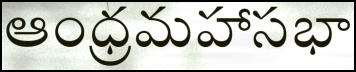
ఆంధ్రమహాసభా